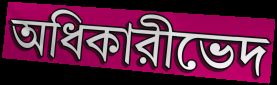
অধিকারীভেদ